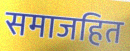
समाजहित